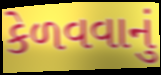
કેળવવાનું